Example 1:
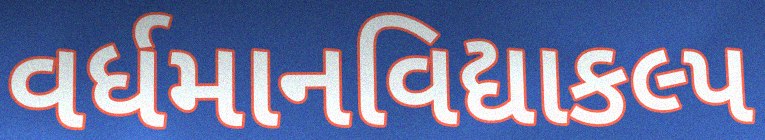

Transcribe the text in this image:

વર્ધમાનવિદ્યાકલ્પ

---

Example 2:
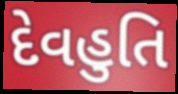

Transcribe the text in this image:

દેવહુતિ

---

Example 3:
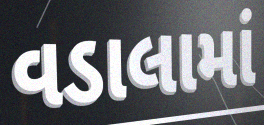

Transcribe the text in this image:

વડાલામાં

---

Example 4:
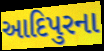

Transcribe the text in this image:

આદિપુરના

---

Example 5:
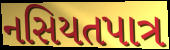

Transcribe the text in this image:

નસિયતપાત્ર